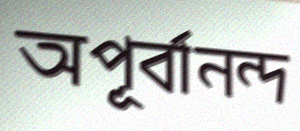
অপূর্বানন্দ